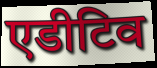
एडीटिव